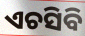
ଏଚସିବି